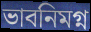
ভাবনিমগ্ন